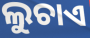
ଲୁଚାଏ